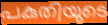
പകുതിയുടെ